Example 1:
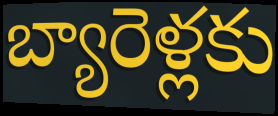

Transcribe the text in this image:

బ్యారెళ్లకు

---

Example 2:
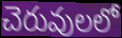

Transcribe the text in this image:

చెరువులలో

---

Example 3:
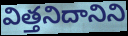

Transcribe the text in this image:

విత్తనిదానిని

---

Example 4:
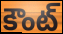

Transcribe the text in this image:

కౌంట్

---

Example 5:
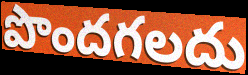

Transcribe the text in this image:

పొందగలదు